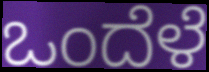
ಒಂದೆಳೆ